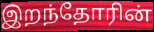
இறந்தோரின்